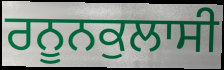
ਰਨੂਨਕੁਲਾਸੀ